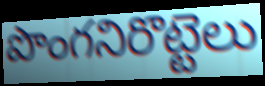
పొంగనిరొట్టెలు